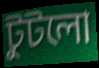
টুটলো